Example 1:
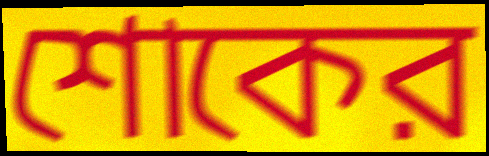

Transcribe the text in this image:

শোকের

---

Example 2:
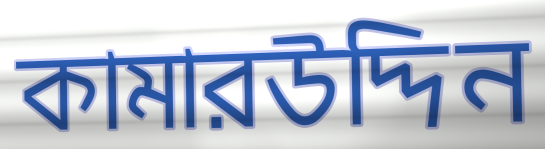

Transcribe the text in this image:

কামারউদ্দিন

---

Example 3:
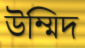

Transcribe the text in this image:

উম্মিদ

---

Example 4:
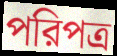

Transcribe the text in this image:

পরিপত্র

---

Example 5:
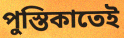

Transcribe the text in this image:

পুস্তিকাতেই